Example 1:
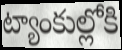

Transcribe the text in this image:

ట్యాంకుల్లోకి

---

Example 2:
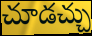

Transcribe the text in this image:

చూడచ్చు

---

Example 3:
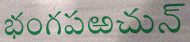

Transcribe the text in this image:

భంగపఱచున్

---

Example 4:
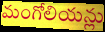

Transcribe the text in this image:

మంగోలియన్లు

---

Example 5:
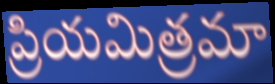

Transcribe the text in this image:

ప్రియమిత్రమా